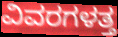
ವಿವರಗಳತ್ತ